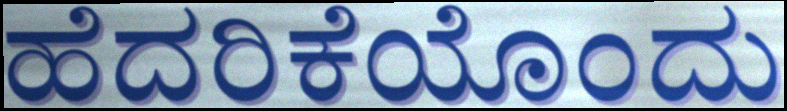
ಹೆದರಿಕೆಯೊಂದು